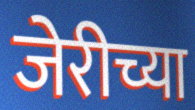
जेरीच्या